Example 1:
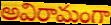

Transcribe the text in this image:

అవిరామంగా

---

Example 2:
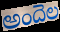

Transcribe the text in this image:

అందెల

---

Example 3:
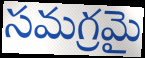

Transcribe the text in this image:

సమగ్రమై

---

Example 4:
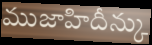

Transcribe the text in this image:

ముజాహిదీన్కు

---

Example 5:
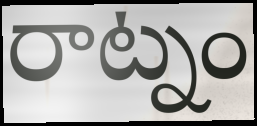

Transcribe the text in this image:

రాట్నం